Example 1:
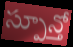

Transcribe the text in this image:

స్పూన్తో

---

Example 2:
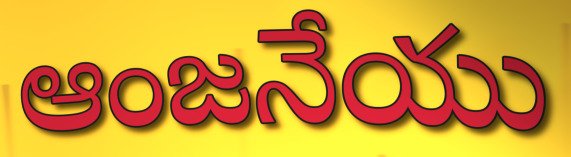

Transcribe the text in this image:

ఆంజనేయు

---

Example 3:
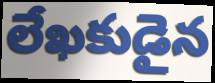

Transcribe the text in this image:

లేఖకుడైన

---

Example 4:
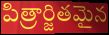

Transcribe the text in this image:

పిత్రార్జితమైన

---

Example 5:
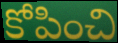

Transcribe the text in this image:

కోపించి